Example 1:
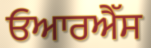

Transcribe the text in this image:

ਓਆਰਐੱਸ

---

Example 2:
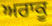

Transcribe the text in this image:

ਅਰਾਕੂ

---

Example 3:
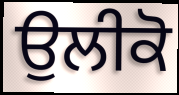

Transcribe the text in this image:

ਉਲੀਕੋ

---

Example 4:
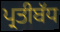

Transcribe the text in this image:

ਪ੍ਰਤੀਬੱਧ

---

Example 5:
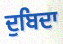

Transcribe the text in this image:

ਦੁਬਿਦਾ